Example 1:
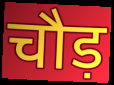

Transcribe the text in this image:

चौड़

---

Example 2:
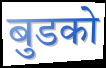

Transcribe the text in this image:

बुडको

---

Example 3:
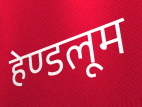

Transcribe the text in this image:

हेण्डलूम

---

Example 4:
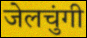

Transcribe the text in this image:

जेलचुंगी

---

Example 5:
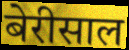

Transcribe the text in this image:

बेरीसाल